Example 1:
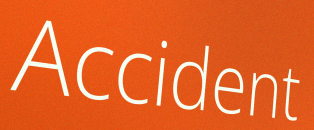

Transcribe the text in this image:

Accident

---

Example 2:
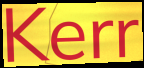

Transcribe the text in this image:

Kerr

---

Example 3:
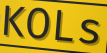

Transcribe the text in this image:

KOLs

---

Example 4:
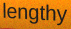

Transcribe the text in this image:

lengthy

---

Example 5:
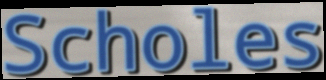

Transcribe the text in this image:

Scholes